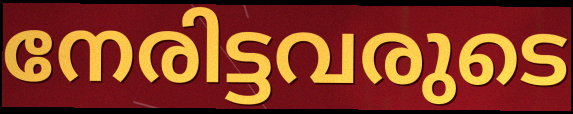
നേരിട്ടവരുടെ